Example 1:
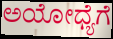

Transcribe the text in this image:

ಅಯೋಧ್ಯೆಗೆ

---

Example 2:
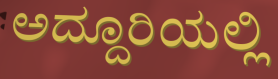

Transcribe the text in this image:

ಅದ್ದೂರಿಯಲ್ಲಿ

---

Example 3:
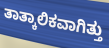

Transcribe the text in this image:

ತಾತ್ಕಾಲಿಕವಾಗಿತ್ತು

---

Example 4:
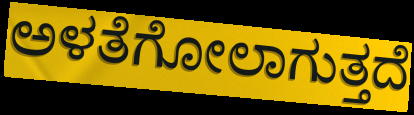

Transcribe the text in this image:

ಅಳತೆಗೋಲಾಗುತ್ತದೆ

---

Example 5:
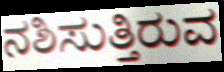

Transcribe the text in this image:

ನಶಿಸುತ್ತಿರುವ